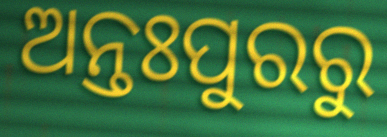
ଅନ୍ତଃପୁରରୁ